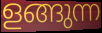
ളങ്ങുന്ന